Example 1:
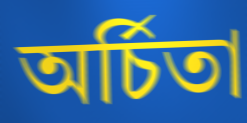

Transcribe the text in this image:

অৰ্চিতা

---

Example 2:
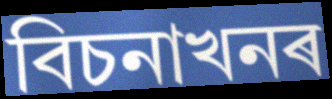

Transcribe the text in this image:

বিচনাখনৰ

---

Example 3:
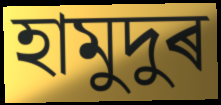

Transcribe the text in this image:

হামুদুৰ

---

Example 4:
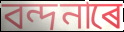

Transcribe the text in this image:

বন্দনাৰে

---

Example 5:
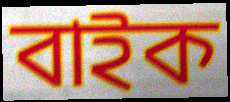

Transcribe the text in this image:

বাইক